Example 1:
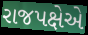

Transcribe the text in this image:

રાજપક્ષેએ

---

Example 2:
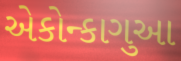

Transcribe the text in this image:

એકોન્કાગુઆ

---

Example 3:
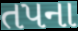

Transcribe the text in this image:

તપના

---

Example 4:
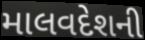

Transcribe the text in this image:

માલવદેશની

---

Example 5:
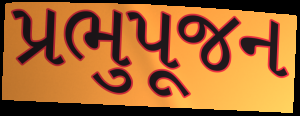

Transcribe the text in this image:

પ્રભુપૂજન